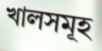
খালসমূহ